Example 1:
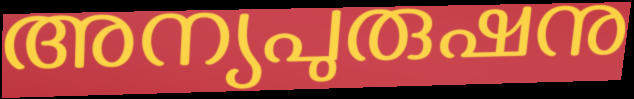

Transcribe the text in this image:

അന്യപുരുഷനു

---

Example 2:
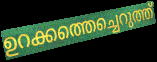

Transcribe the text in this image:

ഉറക്കത്തെച്ചെറുത്ത്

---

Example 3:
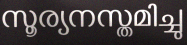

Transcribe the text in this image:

സൂര്യനസ്തമിച്ചു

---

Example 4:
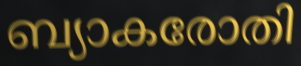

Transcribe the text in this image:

ബ്യാകരോതി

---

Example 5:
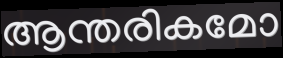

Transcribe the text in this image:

ആന്തരികമോ